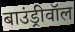
बाउंड्रीवॉल